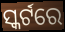
ସ୍କର୍ଟରେ